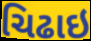
ચિઢાઇ